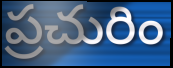
ప్రచురిం